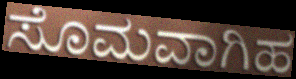
ಸೊಮವಾಗಿಹ